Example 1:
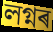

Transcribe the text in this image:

লগ্নৰ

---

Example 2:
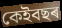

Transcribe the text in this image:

কেইবছৰ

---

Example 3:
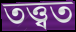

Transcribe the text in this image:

তত্ত্বত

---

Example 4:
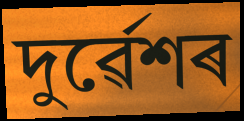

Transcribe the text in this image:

দুৰ্ৱেশৰ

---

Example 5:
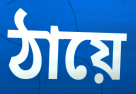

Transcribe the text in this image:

ঠায়ে